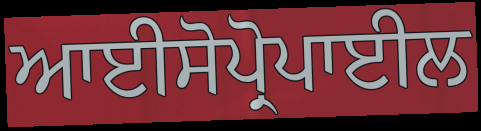
ਆਈਸੋਪ੍ਰੋਪਾਈਲ